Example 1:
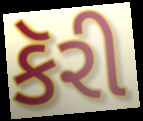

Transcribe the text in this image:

કૅરી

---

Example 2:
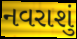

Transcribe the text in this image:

નવરાશું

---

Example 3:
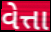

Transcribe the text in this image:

વેત્તા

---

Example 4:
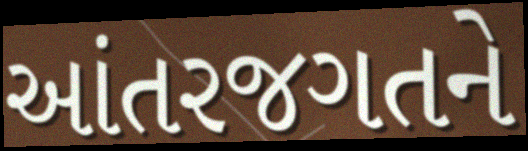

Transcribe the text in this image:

આંતરજગતને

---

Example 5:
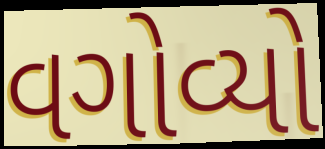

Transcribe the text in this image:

વગોવ્યો